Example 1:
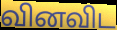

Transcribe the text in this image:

வினவிட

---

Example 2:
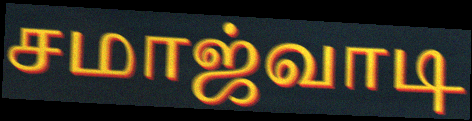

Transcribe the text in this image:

சமாஜ்வாடி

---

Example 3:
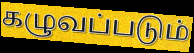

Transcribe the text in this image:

கழுவப்படும்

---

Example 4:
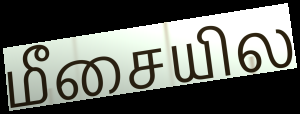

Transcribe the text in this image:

மீசையில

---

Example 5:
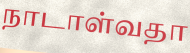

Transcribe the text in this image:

நாடாள்வதா